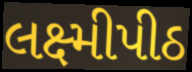
લક્ષ્મીપીઠ